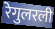
रेगुलरली